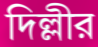
দিল্লীর